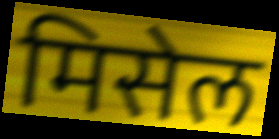
मिसेल